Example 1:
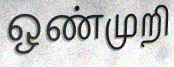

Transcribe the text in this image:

ஒண்முறி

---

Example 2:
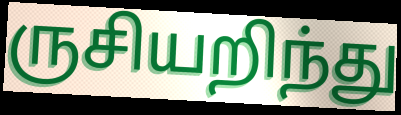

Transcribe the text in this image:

ருசியறிந்து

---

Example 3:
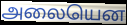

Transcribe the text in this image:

அலையென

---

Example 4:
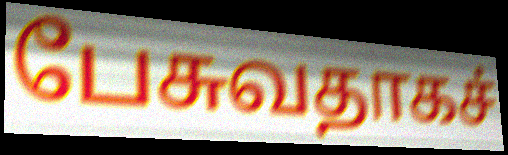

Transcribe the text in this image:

பேசுவதாகச்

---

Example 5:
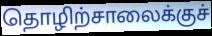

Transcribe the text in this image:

தொழிற்சாலைக்குச்